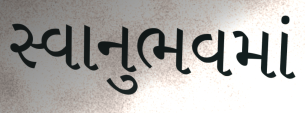
સ્વાનુભવમાં